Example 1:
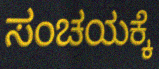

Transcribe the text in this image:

ಸಂಚಯಕ್ಕೆ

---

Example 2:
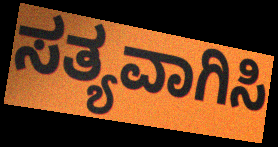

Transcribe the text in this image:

ಸತ್ಯವಾಗಿಸಿ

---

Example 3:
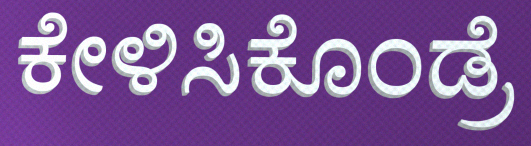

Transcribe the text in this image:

ಕೇಳಿಸಿಕೊಂಡ್ರೆ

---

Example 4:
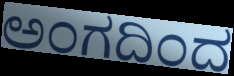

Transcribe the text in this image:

ಅಂಗದಿಂದ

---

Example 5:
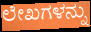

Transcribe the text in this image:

ಲೇಖಗಳನ್ನು